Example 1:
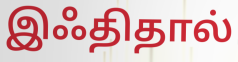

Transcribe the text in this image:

இஃதிதால்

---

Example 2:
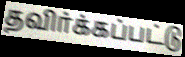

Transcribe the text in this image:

தவிர்க்கப்பட்டு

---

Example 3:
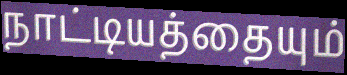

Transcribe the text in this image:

நாட்டியத்தையும்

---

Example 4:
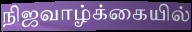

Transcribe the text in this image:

நிஜவாழ்க்கையில்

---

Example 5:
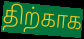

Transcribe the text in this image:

திற்காக